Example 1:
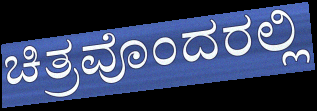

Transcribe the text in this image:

ಚಿತ್ರವೊಂದರಲ್ಲಿ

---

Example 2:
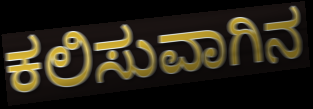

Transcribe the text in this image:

ಕಲಿಸುವಾಗಿನ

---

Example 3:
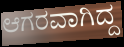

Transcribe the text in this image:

ಆಗರವಾಗಿದ್ದ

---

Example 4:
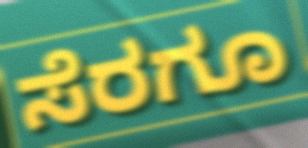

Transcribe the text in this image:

ಸೆರಗೂ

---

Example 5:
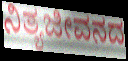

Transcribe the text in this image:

ನಿತ್ಯಜೀವನದ